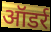
ऑडर्र